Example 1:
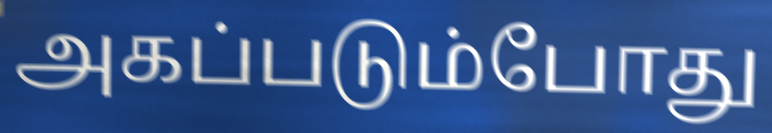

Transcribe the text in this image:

அகப்படும்போது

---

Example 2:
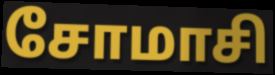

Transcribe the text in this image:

சோமாசி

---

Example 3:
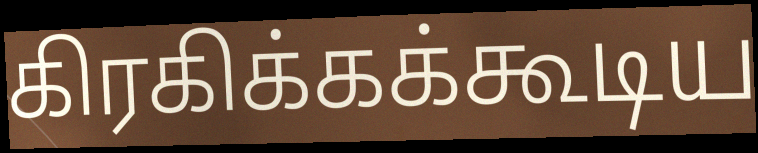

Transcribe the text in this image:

கிரகிக்கக்கூடிய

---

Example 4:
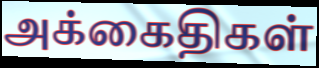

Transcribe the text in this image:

அக்கைதிகள்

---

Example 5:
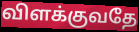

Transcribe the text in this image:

விளக்குவதே